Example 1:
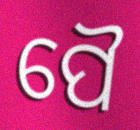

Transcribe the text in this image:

ପୈ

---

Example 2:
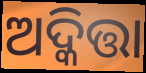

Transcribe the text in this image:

ଅଦ୍କିତ୍ତା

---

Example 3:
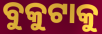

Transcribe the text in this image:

ବୁକୁଟାକୁ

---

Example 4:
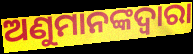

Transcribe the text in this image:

ଅଣୁମାନଙ୍କଦ୍ଵାରା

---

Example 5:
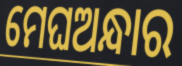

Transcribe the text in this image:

ମେଘଅନ୍ଧାର